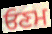
ਓਣਮ